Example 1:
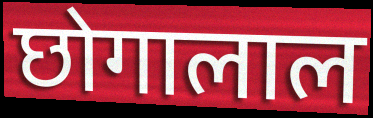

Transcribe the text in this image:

छोगालाल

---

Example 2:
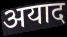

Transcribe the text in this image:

अयाद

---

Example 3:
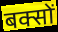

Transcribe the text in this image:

बक्सों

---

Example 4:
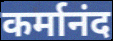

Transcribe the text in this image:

कर्मानंद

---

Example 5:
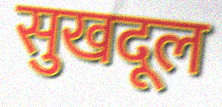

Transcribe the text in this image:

सुखदूल